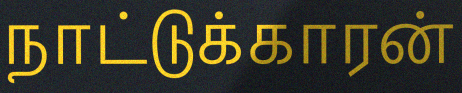
நாட்டுக்காரன்